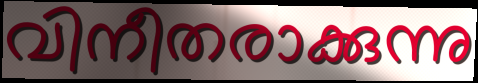
വിനീതരാക്കുന്നു